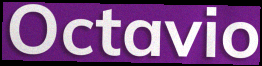
Octavio